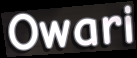
Owari